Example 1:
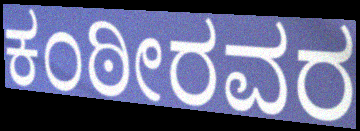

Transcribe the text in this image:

ಕಂಠೀರವರ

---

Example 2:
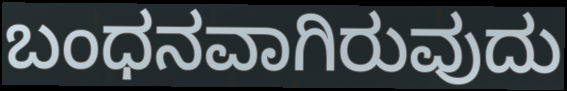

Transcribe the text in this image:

ಬಂಧನವಾಗಿರುವುದು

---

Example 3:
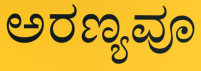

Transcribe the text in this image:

ಅರಣ್ಯವೂ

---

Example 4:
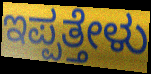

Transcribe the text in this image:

ಇಪ್ಪತ್ತೇಳು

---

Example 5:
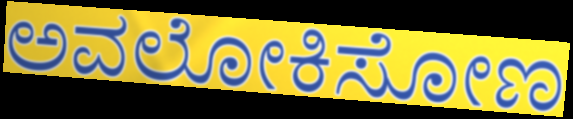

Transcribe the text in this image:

ಅವಲೋಕಿಸೋಣ